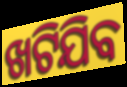
ଖଟିଯିବ